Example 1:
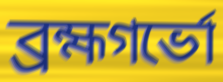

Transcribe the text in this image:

ব্রহ্মগর্ভো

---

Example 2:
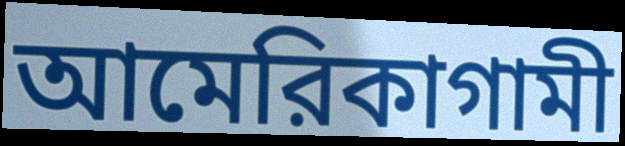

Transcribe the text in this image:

আমেরিকাগামী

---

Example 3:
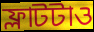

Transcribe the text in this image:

ফ্লাটটাও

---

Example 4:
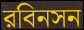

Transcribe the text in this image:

রবিনসন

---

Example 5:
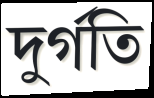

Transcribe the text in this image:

দুর্গতি